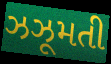
ઝઝૂમતી